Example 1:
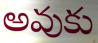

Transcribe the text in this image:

అవుకు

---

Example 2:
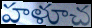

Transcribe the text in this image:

హళూచ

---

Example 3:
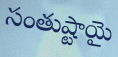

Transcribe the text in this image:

సంతుష్టాయై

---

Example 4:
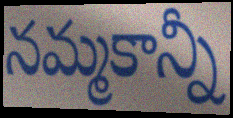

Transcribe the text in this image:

నమ్మకాన్నీ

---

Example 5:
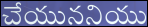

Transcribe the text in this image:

చేయుననియు